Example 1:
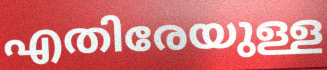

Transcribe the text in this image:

എതിരേയുള്ള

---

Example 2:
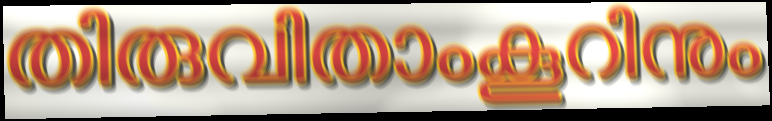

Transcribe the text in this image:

തിരുവിതാംകൂറിനും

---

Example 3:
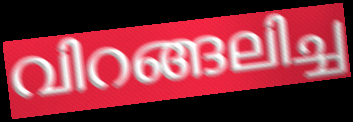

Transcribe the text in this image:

വിറങ്ങലിച്ച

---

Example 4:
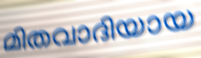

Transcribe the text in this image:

മിതവാദിയായ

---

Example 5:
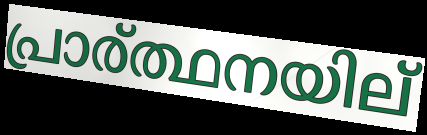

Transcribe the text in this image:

പ്രാര്ത്ഥനയില്